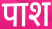
पाश